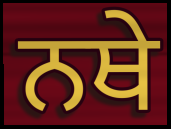
ਨਥੇ